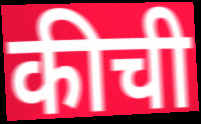
कीची